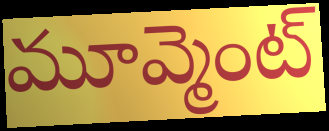
మూవ్మెంట్